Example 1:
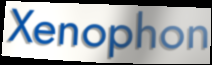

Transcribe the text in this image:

Xenophon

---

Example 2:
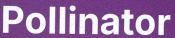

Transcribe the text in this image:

Pollinator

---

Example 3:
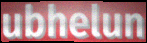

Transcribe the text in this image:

ubhelun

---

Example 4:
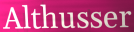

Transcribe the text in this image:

Althusser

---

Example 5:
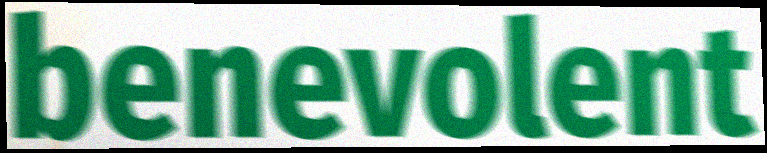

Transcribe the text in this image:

benevolent